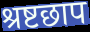
श्रष्टछाप